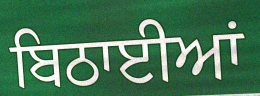
ਬਿਠਾਈਆਂ